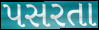
પસરતા